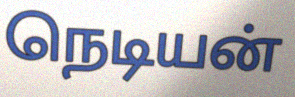
நெடியன்